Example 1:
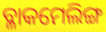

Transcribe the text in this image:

ବ୍ଳାକମେଲିଙ୍ଗ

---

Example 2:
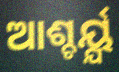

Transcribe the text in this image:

ଆଶ୍ଚର୍ୟ୍ଯ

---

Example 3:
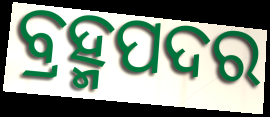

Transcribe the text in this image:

ବ୍ରହ୍ମପଦର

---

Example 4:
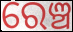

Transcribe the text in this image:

ରେଞ୍ଚ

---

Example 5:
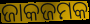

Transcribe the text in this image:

ଜାକଜମକ